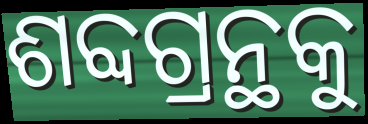
ଶବ୍ଦଗ୍ରନ୍ଥକୁ